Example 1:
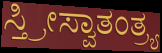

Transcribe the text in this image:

ಸ್ತ್ರೀಸ್ವಾತಂತ್ರ್ಯ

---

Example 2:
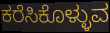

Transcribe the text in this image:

ಕರೆಸಿಕೊಳ್ಳುವ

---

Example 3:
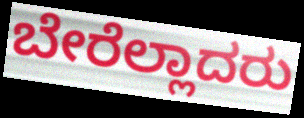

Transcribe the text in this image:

ಬೇರೆಲ್ಲಾದರು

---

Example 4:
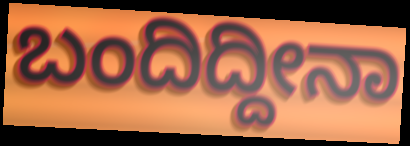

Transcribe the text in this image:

ಬಂದಿದ್ದೀನಾ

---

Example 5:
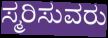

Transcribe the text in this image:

ಸ್ಮರಿಸುವರು